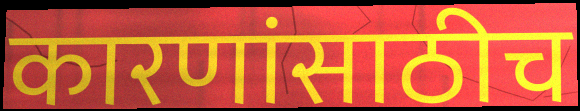
कारणांसाठीच